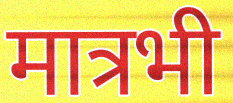
मात्रभी